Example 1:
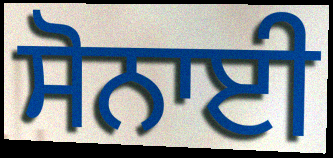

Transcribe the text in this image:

ਸੋਨਾਈ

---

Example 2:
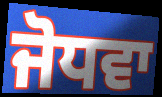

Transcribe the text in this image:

ਜੋਧਵਾ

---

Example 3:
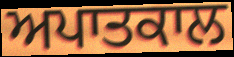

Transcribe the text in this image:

ਅਪਾਤਕਾਲ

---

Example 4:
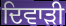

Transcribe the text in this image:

ਦਿਵਾੜੀ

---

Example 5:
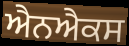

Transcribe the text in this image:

ਐਨਐਕਸ